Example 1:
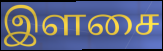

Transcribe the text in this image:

இளசை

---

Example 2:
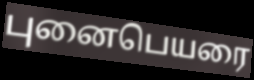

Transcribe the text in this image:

புனைபெயரை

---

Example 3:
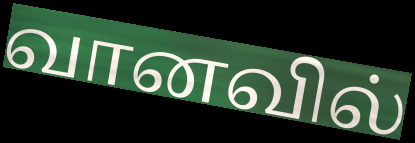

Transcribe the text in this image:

வானவில்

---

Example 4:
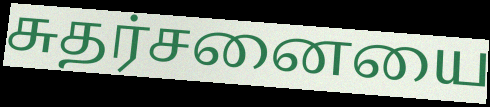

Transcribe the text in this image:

சுதர்சனையை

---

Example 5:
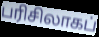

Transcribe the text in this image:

பரிசிலாகப்